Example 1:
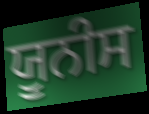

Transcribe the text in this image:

ਯੂਨੀਸ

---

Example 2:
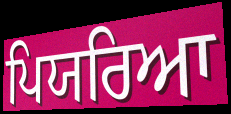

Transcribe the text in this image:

ਪਿਯਰਿਆ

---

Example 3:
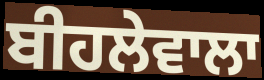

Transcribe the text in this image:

ਬੀਹਲੇਵਾਲਾ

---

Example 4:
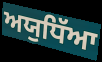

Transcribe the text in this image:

ਅਯੁਧਿੱਆ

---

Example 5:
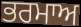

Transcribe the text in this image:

ਭਰਮਾਅ